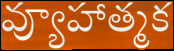
వ్యూహాత్మక